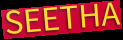
SEETHA